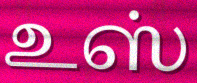
உஸ்